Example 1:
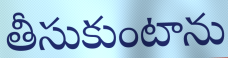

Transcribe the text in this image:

తీసుకుంటాను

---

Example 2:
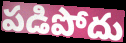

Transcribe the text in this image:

పడిపోదు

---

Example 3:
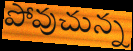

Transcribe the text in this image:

పోవుచున్న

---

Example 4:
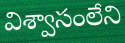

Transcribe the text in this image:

విశ్వాసంలేని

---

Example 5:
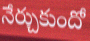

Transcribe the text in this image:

నేర్చుకుందో